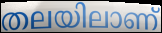
തലയിലാണ്